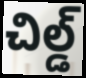
చిల్డ్